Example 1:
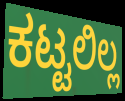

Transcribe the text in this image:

ಕಟ್ಟಲಿಲ್ಲ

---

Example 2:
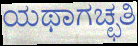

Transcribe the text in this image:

ಯಥಾಗಚ್ಛತಿ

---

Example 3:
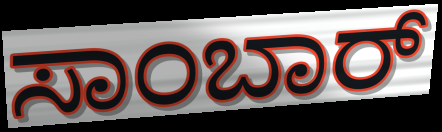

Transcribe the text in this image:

ಸಾಂಬಾರ್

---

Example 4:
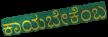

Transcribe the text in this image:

ಕಾಯಬೇಕೆಂಬ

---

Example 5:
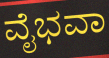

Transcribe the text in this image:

ವೈಭವಾ